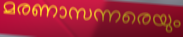
മരണാസന്നരെയും